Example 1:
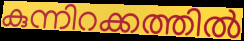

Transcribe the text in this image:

കുന്നിറക്കത്തിൽ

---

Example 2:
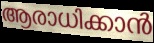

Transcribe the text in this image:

ആരാധിക്കാൻ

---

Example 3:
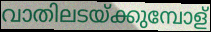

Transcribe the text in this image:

വാതിലടയ്ക്കുമ്പോള്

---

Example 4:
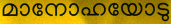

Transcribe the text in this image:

മാനോഹയോടു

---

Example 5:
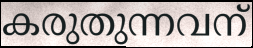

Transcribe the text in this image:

കരുതുന്നവന്